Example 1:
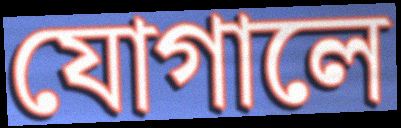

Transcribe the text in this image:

যোগালে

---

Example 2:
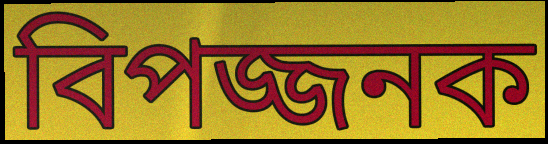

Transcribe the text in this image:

বিপজ্জনক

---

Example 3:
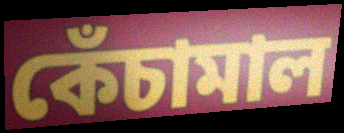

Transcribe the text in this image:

কেঁচামাল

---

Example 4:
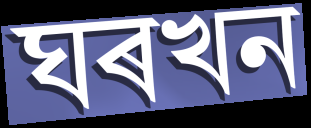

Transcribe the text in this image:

ঘৰখন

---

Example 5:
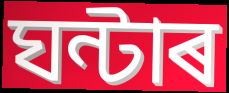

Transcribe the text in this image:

ঘন্টাৰ